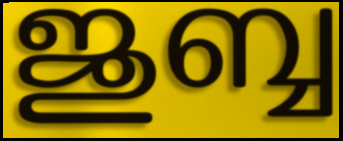
ജുബ്ബ